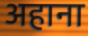
अहाना